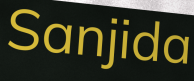
Sanjida